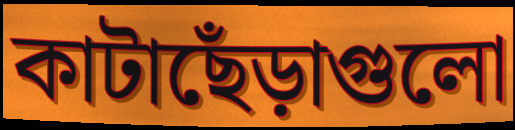
কাটাছেঁড়াগুলো